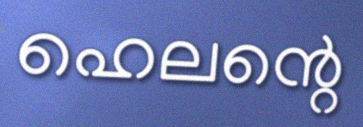
ഹെലന്റെ